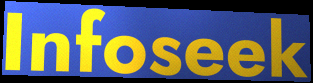
Infoseek